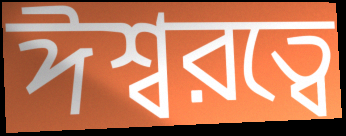
ঈশ্বরত্বে